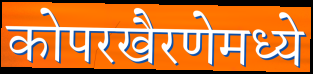
कोपरखैरणेमध्ये